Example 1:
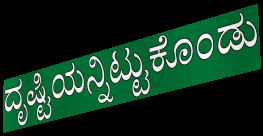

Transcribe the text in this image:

ದೃಷ್ಟಿಯನ್ನಿಟ್ಟುಕೊಂಡು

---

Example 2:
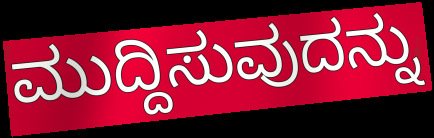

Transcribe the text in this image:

ಮುದ್ದಿಸುವುದನ್ನು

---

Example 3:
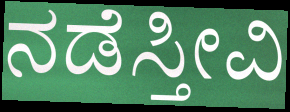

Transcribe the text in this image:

ನಡೆಸ್ತೀವಿ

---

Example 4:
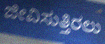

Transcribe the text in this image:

ಜೀವಿಸುತ್ತಿರಲು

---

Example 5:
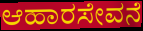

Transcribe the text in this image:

ಆಹಾರಸೇವನೆ